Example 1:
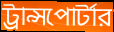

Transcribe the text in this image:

ট্রান্সপোর্টার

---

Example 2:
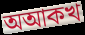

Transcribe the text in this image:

অআকখ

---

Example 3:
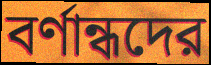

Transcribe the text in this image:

বর্ণান্ধদের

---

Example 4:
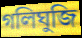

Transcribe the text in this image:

গলিঘুজি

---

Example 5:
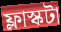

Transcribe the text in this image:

ফ্লাস্কটা